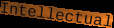
Intellectual